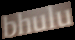
bhulu